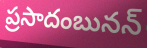
ప్రసాదంబునన్